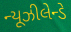
ન્યૂઝીલેન્ડે